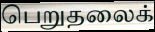
பெறுதலைக்